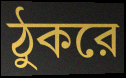
ঠুকরে